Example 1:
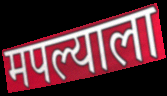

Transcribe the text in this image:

मपल्याला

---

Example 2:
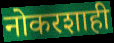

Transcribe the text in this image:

नोकरशाही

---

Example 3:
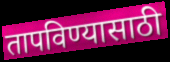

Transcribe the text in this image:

तापविण्यासाठी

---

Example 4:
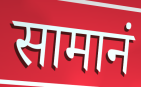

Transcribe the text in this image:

सामानं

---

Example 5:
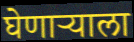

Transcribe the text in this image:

घेणार्‍याला